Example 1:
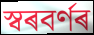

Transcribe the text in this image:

স্বৰবৰ্ণৰ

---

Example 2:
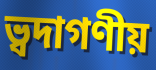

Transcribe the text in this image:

ভ্বদাগণীয়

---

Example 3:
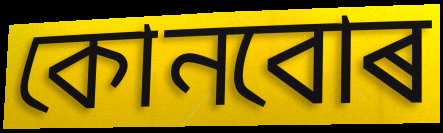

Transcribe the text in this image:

কোনবোৰ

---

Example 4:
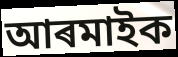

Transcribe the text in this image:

আৰমাইক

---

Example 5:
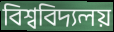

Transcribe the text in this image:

বিশ্ববিদ্যলয়